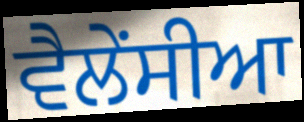
ਵੈਲੇਂਸੀਆ